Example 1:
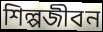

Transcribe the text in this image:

শিল্পজীবন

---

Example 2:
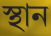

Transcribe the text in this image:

স্থান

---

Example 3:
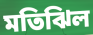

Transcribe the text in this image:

মতিঝিল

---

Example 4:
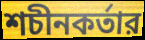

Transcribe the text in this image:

শচীনকর্তার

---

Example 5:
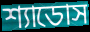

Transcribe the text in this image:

শ্যাডোস